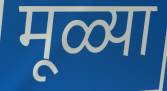
मूळ्या